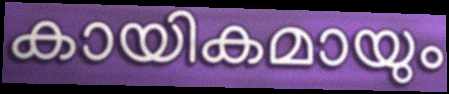
കായികമായും